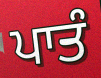
ਪਾਤੰ